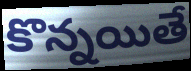
కొన్నయితే